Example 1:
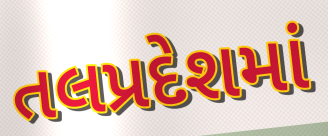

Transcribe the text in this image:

તલપ્રદેશમાં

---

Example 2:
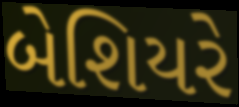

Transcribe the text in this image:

બેશિયરે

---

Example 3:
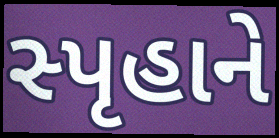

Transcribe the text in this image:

સ્પૃહાને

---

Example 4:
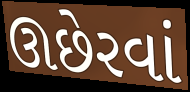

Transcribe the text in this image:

ઊછેરવાં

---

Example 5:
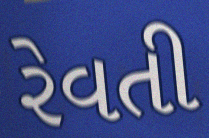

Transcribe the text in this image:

રેવતી